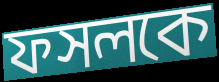
ফসলকে